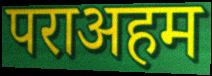
पराअहम